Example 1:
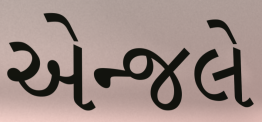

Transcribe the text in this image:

એન્જલે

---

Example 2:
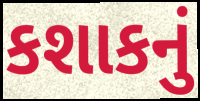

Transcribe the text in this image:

કશાકનું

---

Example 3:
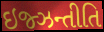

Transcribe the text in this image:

ઇજ્ઝન્તીતિ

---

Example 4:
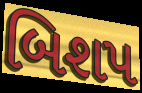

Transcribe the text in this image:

બિશપ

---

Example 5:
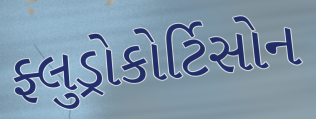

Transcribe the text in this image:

ફ્લુડ્રોકોર્ટિસોન